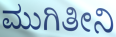
ಮುಗಿತೀನಿ